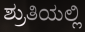
ಶ್ರುತಿಯಲ್ಲಿ